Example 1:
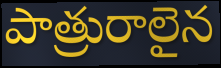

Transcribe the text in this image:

పాత్రురాలైన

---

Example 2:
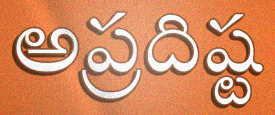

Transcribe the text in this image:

అప్రదిష్ట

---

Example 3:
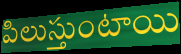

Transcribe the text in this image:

పిలుస్తుంటాయి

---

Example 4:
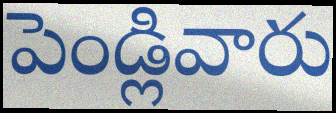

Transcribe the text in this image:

పెండ్లివారు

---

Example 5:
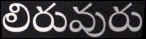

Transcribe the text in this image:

లిరువురు